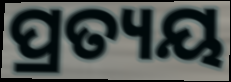
ପ୍ରତ୍ୟୟ